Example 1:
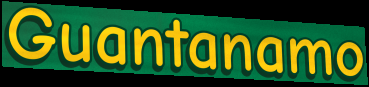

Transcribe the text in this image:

Guantanamo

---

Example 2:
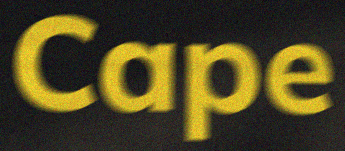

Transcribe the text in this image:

Cape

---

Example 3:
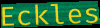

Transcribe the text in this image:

Eckles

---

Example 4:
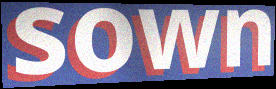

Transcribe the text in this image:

sown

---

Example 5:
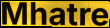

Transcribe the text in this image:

Mhatre